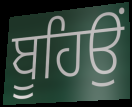
ਬੂਹਿਉਂ